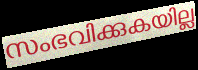
സംഭവിക്കുകയില്ല